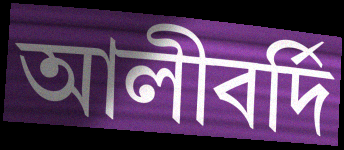
আলীবর্দি